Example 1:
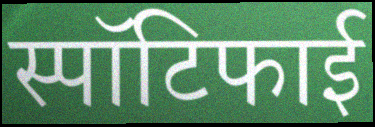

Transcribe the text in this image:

स्पॉटिफाई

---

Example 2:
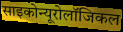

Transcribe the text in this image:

साइकोन्यूरोलॉजिकल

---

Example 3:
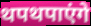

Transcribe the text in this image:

थपथपाएंगे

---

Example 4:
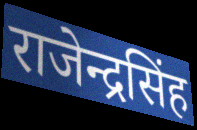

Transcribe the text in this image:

राजेन्द्रसिंह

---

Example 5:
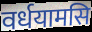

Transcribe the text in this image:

वर्धयामसि